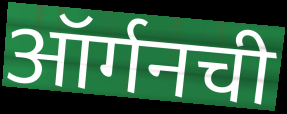
ऑर्गनची